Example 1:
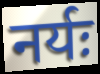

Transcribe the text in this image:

नर्यः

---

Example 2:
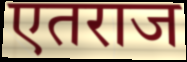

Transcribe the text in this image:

एतराज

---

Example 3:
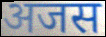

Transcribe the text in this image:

अजस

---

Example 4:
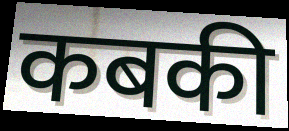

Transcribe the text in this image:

कबकी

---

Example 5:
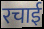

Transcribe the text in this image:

रचाई